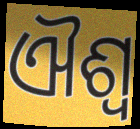
ଐଶ୍ୱ